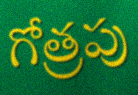
గోత్రపు